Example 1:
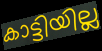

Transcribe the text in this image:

കാട്ടിയില്ല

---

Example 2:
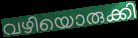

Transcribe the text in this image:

വഴിയൊരുക്കി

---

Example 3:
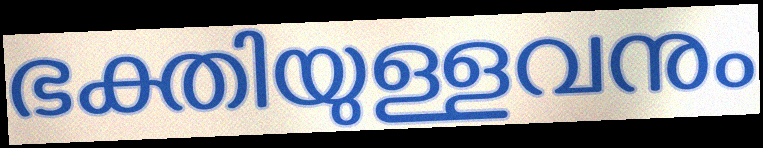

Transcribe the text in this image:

ഭക്തിയുള്ളവനും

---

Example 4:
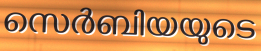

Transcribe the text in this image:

സെർബിയയുടെ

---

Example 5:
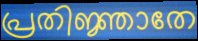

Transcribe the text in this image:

പ്രതിജ്ഞാതേ